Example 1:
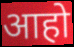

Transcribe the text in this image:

आहो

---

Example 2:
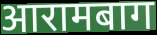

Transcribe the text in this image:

आरामबाग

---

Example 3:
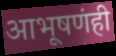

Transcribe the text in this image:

आभूषणंही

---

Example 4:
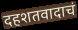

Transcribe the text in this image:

दहशतवादाचं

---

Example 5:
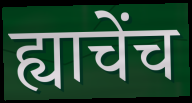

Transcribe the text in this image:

ह्याचेंच